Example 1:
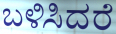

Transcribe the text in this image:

ಬಳಿಸಿದರೆ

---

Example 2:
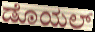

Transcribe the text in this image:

ಡೊಯಲ್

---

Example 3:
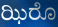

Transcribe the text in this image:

ಝಿರೊ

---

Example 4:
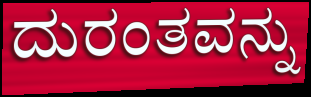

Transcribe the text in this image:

ದುರಂತವನ್ನು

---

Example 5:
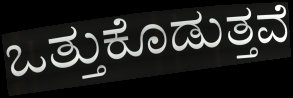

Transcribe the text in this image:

ಒತ್ತುಕೊಡುತ್ತವೆ